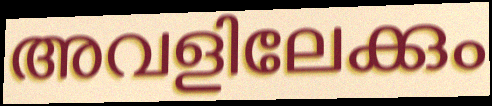
അവളിലേക്കും